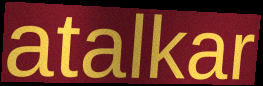
atalkar